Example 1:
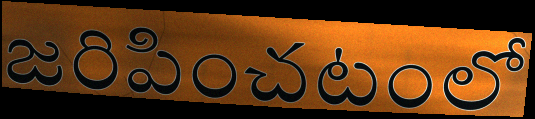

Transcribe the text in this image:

జరిపించటంలో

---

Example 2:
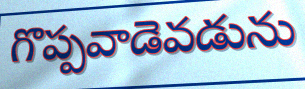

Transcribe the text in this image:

గొప్పవాడెవడును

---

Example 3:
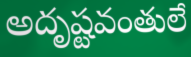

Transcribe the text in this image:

అదృష్టవంతులే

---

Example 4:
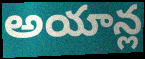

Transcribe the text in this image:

అయాన్ల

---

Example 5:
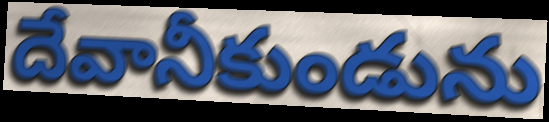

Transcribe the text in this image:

దేవానీకుండును